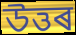
উত্তৰ